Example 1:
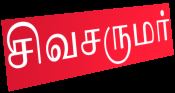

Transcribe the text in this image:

சிவசருமர்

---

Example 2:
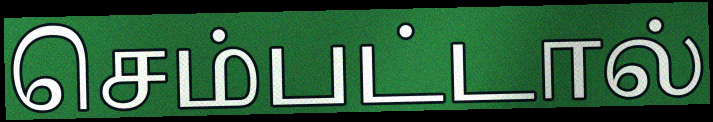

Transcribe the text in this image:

செம்பட்டால்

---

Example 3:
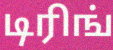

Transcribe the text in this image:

டிரிங்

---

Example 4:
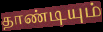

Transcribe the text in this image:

தாண்டியும்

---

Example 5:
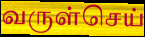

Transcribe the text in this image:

வருள்செய்